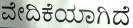
ವೇದಿಕೆಯಾಗಿದೆ